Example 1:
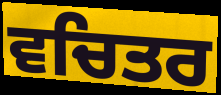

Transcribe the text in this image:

ਵਚਿਤਰ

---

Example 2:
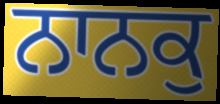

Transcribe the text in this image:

ਨਾਨਕੁ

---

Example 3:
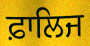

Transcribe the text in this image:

ਫ਼ਾਲਿਜ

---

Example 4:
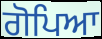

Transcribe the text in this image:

ਗੋਪਿਆ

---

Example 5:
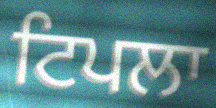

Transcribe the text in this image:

ਟਿਪਲਾ